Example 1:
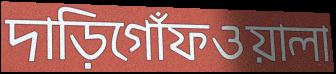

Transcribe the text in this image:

দাড়িগোঁফওয়ালা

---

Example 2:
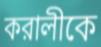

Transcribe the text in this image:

করালীকে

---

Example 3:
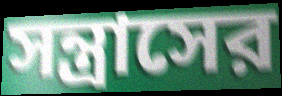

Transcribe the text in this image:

সন্ত্রাসের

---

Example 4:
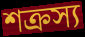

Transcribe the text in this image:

শক্রস্য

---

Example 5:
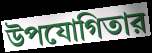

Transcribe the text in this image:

উপযোগিতার